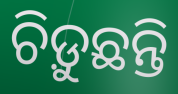
ଚିଡ଼ୁଛନ୍ତି